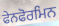
ਫੇਨਫੋਰਮਿਨ